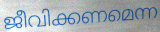
ജീവിക്കണമെന്ന